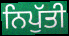
ਨਿਪੁੱਤੀ